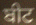
ਬੀਟ